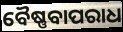
ବୈଷ୍ଣବାପରାଧ